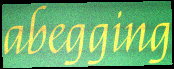
abegging